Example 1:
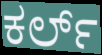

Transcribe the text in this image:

ಕರ್ಲ್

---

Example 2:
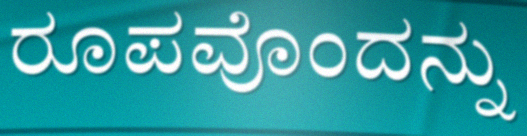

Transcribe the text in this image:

ರೂಪವೊಂದನ್ನು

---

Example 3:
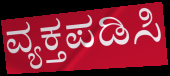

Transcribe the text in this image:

ವ್ಯಕ್ತಪಡಿಸಿ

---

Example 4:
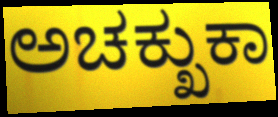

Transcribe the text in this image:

ಅಚಕ್ಖುಕಾ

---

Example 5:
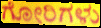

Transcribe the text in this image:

ಗೋರಿಗಳು